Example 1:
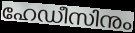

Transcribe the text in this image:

ഹേഡീസിനും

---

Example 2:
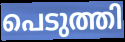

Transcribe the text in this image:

പെടുത്തി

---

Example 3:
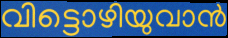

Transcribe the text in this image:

വിട്ടൊഴിയുവാൻ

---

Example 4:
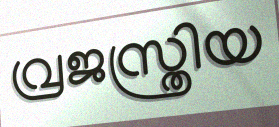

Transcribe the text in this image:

വ്രജസ്ത്രിയ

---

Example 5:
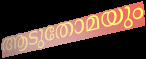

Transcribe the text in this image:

ആടുതോമയും